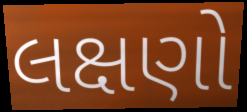
લક્ષણો